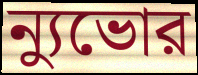
ন্যুভোর